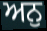
ਅਨੁ